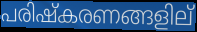
പരിഷ്കരണങ്ങളില്